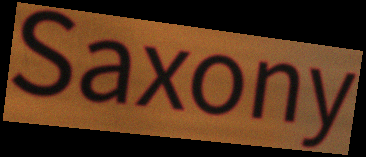
Saxony